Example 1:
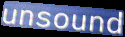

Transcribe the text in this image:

unsound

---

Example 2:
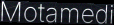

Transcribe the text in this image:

Motamedi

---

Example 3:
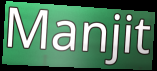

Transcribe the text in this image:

Manjit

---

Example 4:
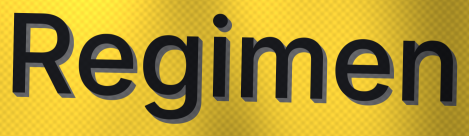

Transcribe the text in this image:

Regimen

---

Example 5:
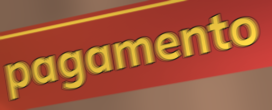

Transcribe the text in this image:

pagamento